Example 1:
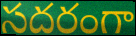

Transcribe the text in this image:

సదరంగా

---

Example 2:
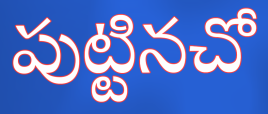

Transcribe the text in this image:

పుట్టినచో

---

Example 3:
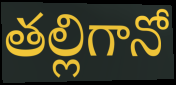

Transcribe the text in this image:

తల్లిగానో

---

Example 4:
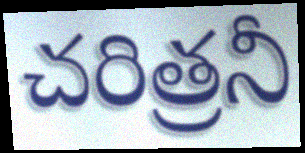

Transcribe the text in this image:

చరిత్రనీ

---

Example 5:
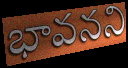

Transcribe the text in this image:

భావనని